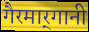
गैरमार्गानी